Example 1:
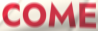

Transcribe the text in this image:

COME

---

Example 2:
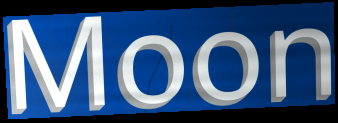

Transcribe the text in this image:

Moon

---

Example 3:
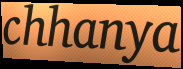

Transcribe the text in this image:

chhanya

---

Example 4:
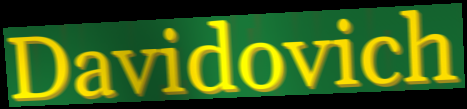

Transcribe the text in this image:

Davidovich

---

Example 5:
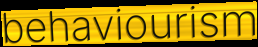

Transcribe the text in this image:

behaviourism